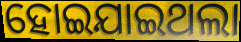
ହୋଇଯାଇଥଲା